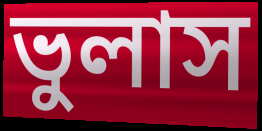
ভুলাস